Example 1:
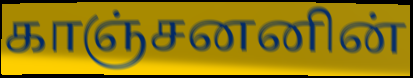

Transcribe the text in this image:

காஞ்சனனின்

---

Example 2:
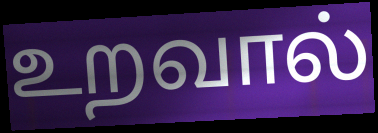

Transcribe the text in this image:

உறவால்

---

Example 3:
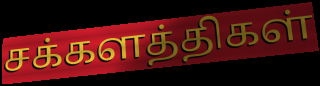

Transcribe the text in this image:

சக்களத்திகள்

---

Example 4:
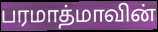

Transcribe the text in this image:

பரமாத்மாவின்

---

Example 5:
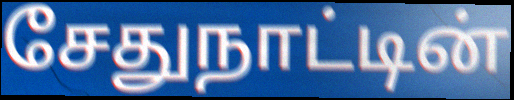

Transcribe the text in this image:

சேதுநாட்டின்